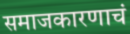
समाजकारणाचं